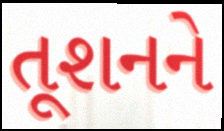
તૂશનને